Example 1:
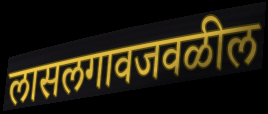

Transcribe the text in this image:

लासलगावजवळील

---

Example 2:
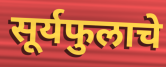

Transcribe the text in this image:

सूर्यफुलाचे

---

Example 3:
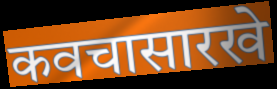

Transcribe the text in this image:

कवचासारखे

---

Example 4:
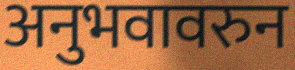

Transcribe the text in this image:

अनुभवावरुन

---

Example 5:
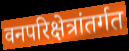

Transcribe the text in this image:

वनपरिक्षेत्रांतर्गत